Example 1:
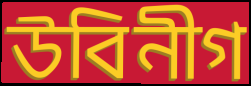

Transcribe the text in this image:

উবিনীগ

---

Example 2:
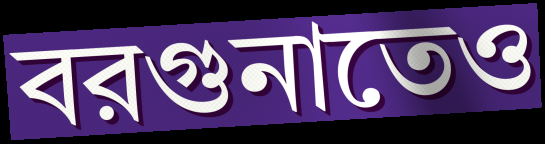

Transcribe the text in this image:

বরগুনাতেও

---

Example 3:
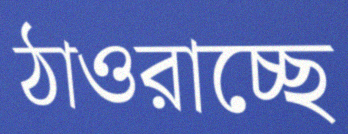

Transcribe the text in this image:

ঠাওরাচ্ছে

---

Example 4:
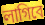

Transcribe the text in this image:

লাগিবে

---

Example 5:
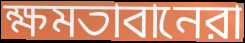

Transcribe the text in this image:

ক্ষমতাবানেরা